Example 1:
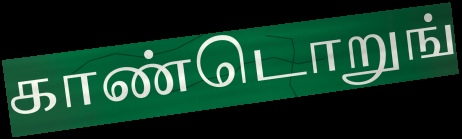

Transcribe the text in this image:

காண்டொறுங்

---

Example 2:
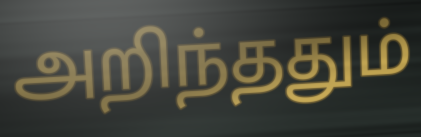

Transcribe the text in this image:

அறிந்ததும்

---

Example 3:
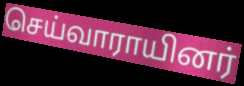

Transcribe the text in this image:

செய்வாராயினர்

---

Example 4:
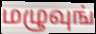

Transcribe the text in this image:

மழுவுங்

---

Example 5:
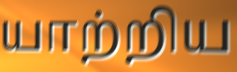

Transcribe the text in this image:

யாற்றிய